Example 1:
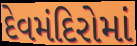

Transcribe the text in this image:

દેવમંદિરોમાં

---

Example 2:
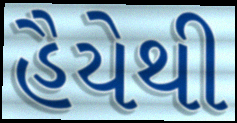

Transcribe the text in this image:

હૈયેથી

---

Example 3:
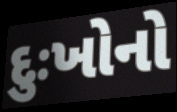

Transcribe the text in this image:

દુઃખોનો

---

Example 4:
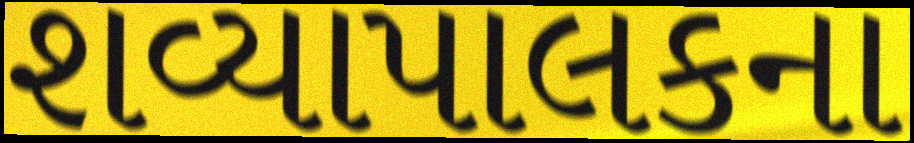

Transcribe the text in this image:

શવ્યાપાલકના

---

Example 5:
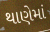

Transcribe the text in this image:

થાણેમાં